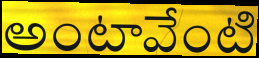
అంటావేంటి